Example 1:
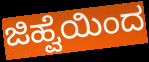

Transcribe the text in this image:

ಜಿಹ್ವೆಯಿಂದ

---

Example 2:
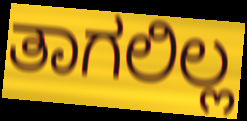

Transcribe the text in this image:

ತಾಗಲಿಲ್ಲ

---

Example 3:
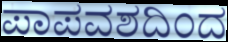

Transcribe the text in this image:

ಪಾಪವಶದಿಂದ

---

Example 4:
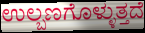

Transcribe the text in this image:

ಉಲ್ಬಣಗೊಳ್ಳುತ್ತದೆ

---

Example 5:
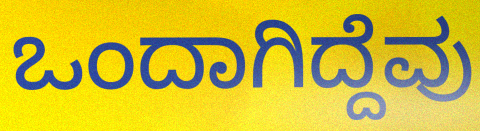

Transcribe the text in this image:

ಒಂದಾಗಿದ್ದೆವು